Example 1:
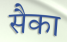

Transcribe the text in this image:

सैका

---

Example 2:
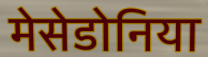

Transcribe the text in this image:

मेसेडोनिया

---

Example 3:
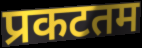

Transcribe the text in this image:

प्रकटतम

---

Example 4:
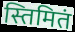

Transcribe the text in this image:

स्तिमितं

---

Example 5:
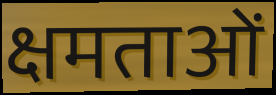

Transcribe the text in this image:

क्षमताओं